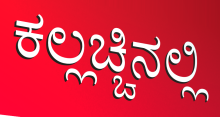
ಕಲ್ಲಚ್ಚಿನಲ್ಲಿ